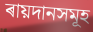
ৰায়দানসমূহ